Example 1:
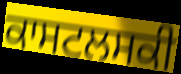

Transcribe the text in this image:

ਕਾਸਟਲਸਕੀ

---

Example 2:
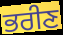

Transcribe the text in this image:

ਭਰੀਣ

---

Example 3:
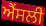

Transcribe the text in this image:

ਐਂਸਲੀ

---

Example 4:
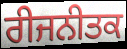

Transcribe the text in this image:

ਰੀਜਨੀਤਕ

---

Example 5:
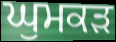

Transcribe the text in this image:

ਘੁਮਕੜ